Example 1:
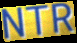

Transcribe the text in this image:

NTR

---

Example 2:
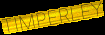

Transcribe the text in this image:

TIMPERLEY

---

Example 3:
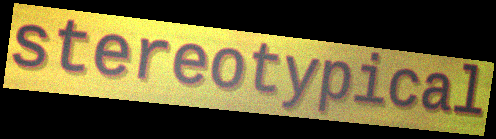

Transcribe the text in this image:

stereotypical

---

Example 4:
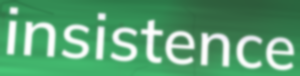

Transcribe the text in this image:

insistence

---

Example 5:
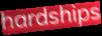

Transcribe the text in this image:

hardships